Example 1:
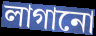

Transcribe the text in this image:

লাগানো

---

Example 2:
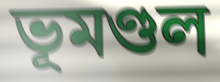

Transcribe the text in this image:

ভূমণ্ডল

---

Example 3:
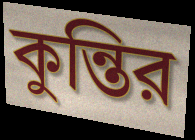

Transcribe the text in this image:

কুন্তির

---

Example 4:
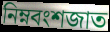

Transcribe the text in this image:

নিম্নবংশজাত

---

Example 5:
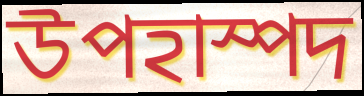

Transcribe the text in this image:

উপহাস্পদ